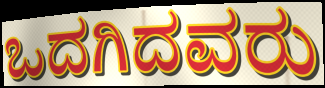
ಒದಗಿದವರು